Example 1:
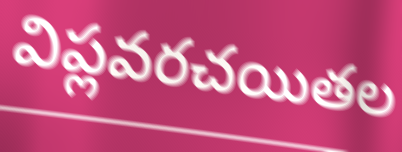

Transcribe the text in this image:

విప్లవరచయితల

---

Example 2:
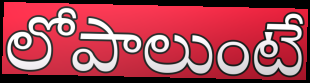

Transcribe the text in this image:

లోపాలుంటే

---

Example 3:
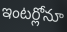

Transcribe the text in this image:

ఇంటర్లోనూ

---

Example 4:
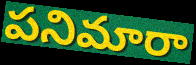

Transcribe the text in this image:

పనిమారా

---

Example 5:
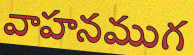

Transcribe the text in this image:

వాహనముగ